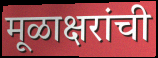
मूळाक्षरांची